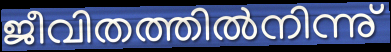
ജീവിതത്തിൽനിന്നു്